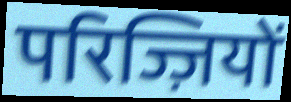
परिज्ज़ियों